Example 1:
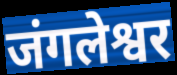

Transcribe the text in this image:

जंगलेश्वर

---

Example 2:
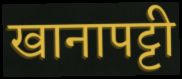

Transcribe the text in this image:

खानापट्टी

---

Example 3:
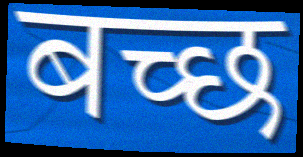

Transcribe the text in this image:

बच्छ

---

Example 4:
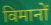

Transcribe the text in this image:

विमानों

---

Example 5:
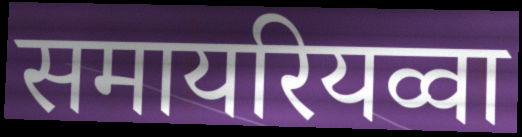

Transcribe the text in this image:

समायरियव्वा